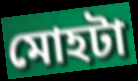
মোহটা